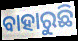
ବାହାରୁଛି